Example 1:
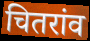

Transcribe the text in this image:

चितरांव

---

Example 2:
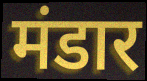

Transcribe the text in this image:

मंडार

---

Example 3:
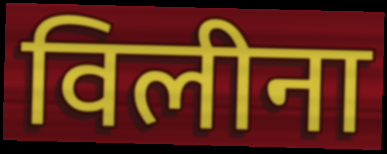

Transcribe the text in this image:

विलीना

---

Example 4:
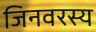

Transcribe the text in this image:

जिनवरस्य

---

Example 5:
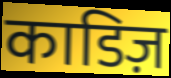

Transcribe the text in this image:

काडिज़